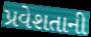
પ્રવેશતાની